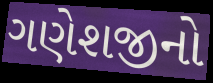
ગણેશજીનો